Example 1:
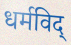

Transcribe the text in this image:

धर्मविद्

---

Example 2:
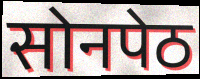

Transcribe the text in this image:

सोनपेठ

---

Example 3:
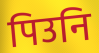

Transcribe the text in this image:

पिउनि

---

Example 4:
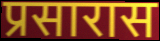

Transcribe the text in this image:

प्रसारास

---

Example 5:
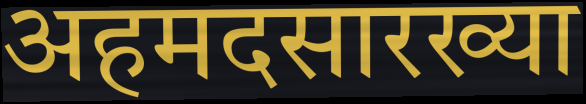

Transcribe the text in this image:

अहमदसारख्या